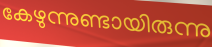
കേഴുന്നുണ്ടായിരുന്നു